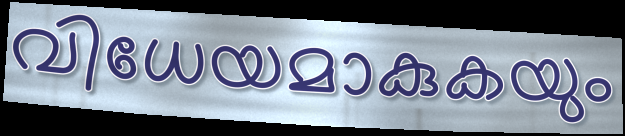
വിധേയമാകുകയും